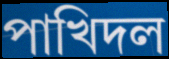
পাখিদল